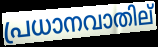
പ്രധാനവാതില്